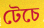
টেচে